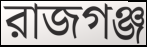
রাজগঞ্জ